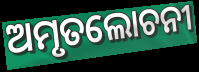
ଅମୃତଲୋଚନୀ